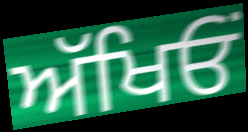
ਅੱਖਿਓਂ